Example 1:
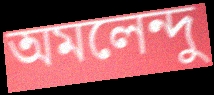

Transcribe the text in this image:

অমলেন্দু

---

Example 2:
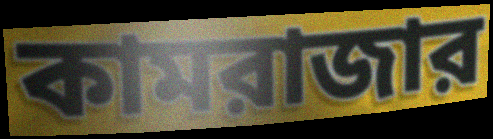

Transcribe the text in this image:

কামরাজার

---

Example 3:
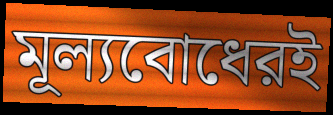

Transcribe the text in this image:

মূল্যবোধেরই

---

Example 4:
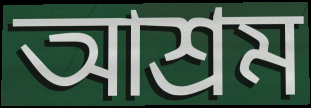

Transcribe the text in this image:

আশ্রম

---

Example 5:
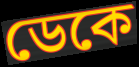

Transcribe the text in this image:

ডেকে